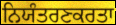
ਨਿਯੰਤਰਣਕਰਤਾ